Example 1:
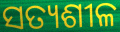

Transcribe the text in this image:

ସତ୍ୟଶୀଳ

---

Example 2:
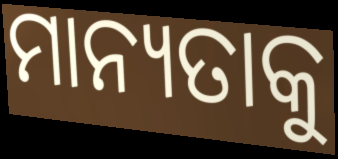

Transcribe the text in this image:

ମାନ୍ୟତାକୁ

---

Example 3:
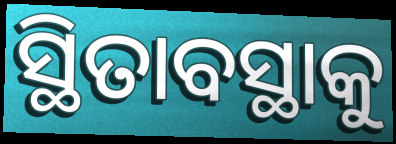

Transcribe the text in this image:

ସ୍ଥିତାବସ୍ଥାକୁ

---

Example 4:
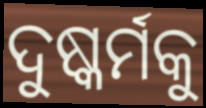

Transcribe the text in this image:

ଦୁଷ୍କର୍ମକୁ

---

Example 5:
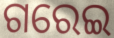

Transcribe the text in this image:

ଗରେଇ